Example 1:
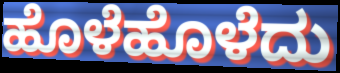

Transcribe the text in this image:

ಹೊಳೆಹೊಳೆದು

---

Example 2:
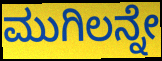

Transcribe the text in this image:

ಮುಗಿಲನ್ನೇ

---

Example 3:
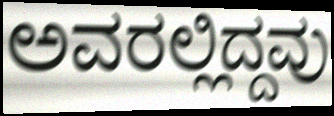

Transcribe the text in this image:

ಅವರಲ್ಲಿದ್ದವು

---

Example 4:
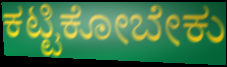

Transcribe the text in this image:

ಕಟ್ಟಿಕೋಬೇಕು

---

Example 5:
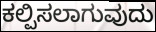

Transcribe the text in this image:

ಕಲ್ಪಿಸಲಾಗುವುದು